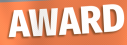
AWARD